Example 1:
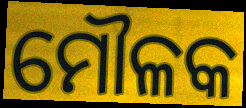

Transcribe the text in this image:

ମୌଳକ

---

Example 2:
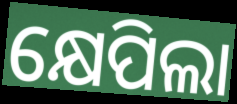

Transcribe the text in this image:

କ୍ଷେପିଲା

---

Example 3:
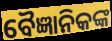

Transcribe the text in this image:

ବୈଜ୍ଞାନିକଙ୍କ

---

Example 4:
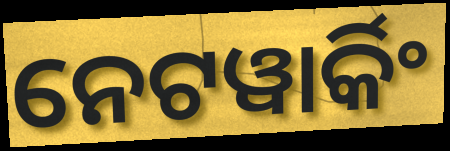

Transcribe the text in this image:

ନେଟୱାର୍କିଂ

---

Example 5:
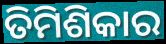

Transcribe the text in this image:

ତିମିଶିକାର